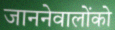
जाननेवालोंको